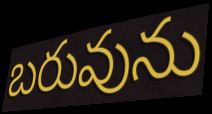
బరువును